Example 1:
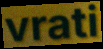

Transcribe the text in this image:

vrati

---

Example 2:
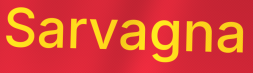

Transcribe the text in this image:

Sarvagna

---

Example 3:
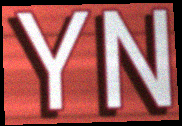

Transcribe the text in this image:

YN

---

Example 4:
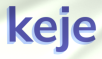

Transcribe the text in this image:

keje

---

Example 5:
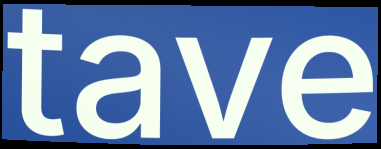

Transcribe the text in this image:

tave